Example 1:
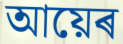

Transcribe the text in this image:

আয়েৰ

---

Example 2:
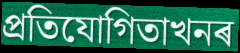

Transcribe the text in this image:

প্ৰতিযোগিতাখনৰ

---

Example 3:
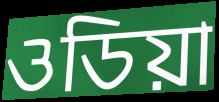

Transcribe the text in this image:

ওডিয়া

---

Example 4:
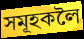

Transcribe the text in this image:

সমূহকলৈ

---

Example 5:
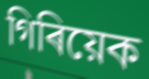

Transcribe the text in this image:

গিৰিয়েক